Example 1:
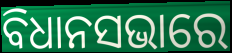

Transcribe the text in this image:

ବିଧାନସଭାରେ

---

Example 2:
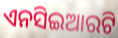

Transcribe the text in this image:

ଏନସିଇଆରଟି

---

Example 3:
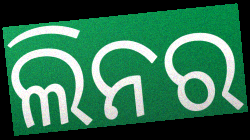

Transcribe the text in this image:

ଲିନର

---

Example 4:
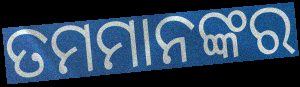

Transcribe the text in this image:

ତମମାନଙ୍କର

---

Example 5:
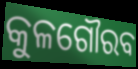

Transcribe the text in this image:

କୁଳଗୌରବ